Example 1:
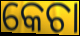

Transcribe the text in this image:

କେଚା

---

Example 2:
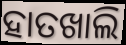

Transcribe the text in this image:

ହାତଖାଲି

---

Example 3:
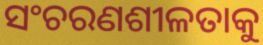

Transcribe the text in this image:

ସଂଚରଣଶୀଳତାକୁ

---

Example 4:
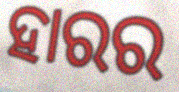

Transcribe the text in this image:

ହାରର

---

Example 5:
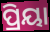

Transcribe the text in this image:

ପ୍ରିୟା